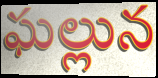
ఘల్లున